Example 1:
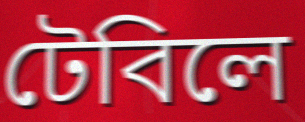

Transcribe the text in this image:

টেবিলে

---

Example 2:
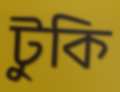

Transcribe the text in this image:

টুকি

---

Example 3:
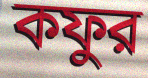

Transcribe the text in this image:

কফুর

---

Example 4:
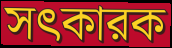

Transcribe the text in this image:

সৎকারক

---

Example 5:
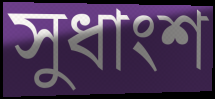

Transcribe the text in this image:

সুধাংশ